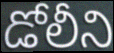
డోలీని